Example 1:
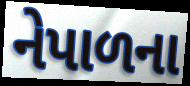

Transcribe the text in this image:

નેપાળના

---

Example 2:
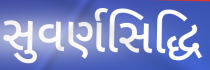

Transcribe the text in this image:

સુવર્ણસિદ્ધિ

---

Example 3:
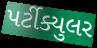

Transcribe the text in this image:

પર્ટીક્યુલર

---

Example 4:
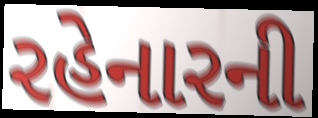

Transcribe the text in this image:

રહેનારની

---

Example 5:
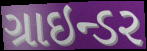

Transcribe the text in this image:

ગ્રાઇન્ડર